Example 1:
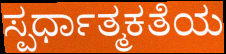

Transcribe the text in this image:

ಸ್ಪರ್ಧಾತ್ಮಕತೆಯ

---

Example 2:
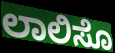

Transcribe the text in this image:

ಲಾಲಿಸೊ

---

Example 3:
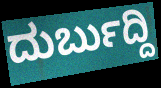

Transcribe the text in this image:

ದುರ್ಬುದ್ದಿ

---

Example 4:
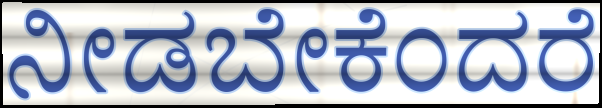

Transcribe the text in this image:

ನೀಡಬೇಕೆಂದರೆ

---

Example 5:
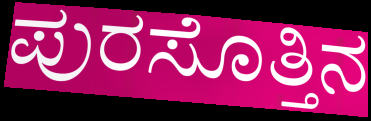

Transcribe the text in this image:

ಪುರಸೊತ್ತಿನ